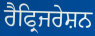
ਰੈਫ੍ਰਿਜਰੇਸ਼ਨ